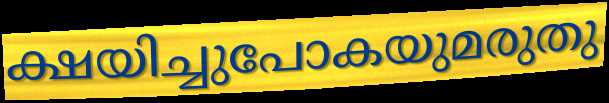
ക്ഷയിച്ചുപോകയുമരുതു